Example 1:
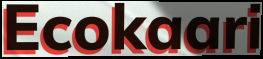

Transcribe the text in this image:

Ecokaari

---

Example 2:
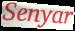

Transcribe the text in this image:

Senyar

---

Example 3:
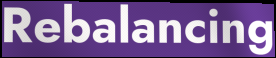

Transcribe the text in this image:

Rebalancing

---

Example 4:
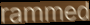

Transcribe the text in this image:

rammed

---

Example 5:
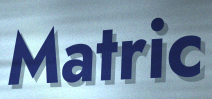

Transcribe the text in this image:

Matric